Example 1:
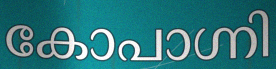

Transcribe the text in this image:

കോപാഗ്നി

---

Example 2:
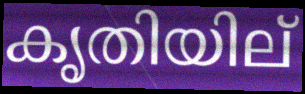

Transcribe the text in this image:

കൃതിയില്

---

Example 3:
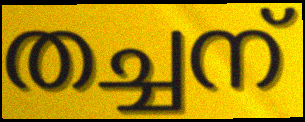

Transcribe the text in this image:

തച്ചന്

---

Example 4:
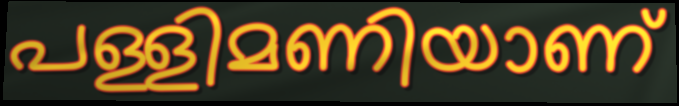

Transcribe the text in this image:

പള്ളിമണിയാണ്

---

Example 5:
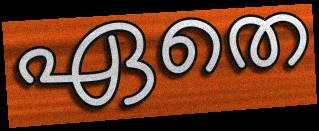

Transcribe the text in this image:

ഏതെ